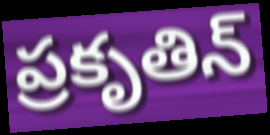
ప్రకృతిన్